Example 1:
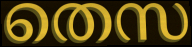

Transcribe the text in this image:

തെസ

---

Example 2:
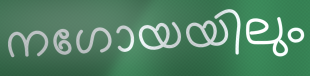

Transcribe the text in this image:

നഗോയയിലും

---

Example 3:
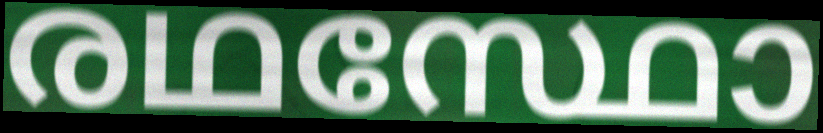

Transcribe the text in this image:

രഥസ്ഥോ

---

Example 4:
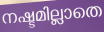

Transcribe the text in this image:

നഷ്ടമില്ലാതെ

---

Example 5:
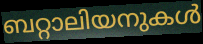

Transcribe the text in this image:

ബറ്റാലിയനുകൾ